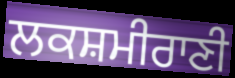
ਲਕਸ਼ਮੀਰਾਣੀ